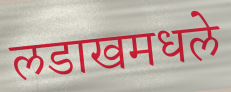
लडाखमधले